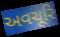
અવચૂરિ